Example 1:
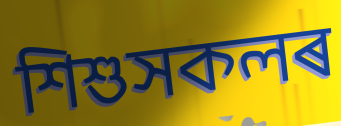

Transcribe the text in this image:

শিশুসকলৰ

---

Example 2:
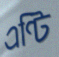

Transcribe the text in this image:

এণ্টি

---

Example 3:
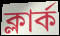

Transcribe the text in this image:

ক্লাৰ্ক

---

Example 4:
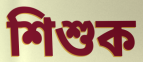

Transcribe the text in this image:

শিশুক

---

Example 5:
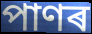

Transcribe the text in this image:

পাণৰ